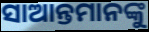
ସାଆନ୍ତମାନଙ୍କୁ